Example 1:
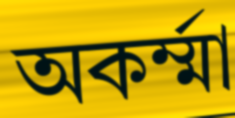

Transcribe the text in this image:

অকর্ম্মা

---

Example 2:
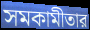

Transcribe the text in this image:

সমকামীতার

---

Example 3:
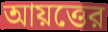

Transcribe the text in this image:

আয়ত্তের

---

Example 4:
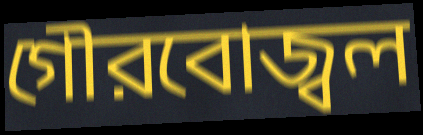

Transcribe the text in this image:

গৌরবোজ্বল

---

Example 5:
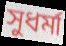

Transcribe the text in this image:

সুধর্মা